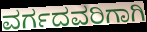
ವರ್ಗದವರಿಗಾಗಿ